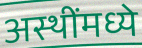
अस्थींमध्ये